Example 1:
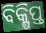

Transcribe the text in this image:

ବିକ୍ଷିପ୍ତ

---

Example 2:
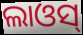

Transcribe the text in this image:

ଲାଓସ୍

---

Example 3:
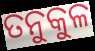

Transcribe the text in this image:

ତନୁକୁଳ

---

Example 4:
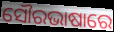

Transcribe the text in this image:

ସୌରଭାଷାରେ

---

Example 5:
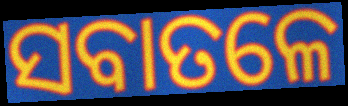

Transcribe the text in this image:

ସବାତଳେ